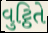
વુટ્ઠિતે